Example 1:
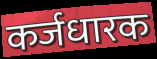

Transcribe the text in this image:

कर्जधारक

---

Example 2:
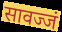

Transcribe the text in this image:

सावज्जं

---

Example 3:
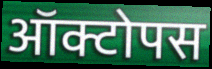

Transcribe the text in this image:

ऑक्टोपस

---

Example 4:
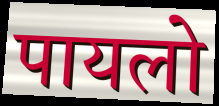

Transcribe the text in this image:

पायलो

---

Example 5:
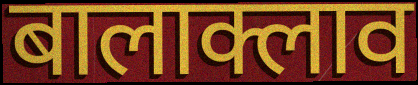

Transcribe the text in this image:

बालाक्लाव